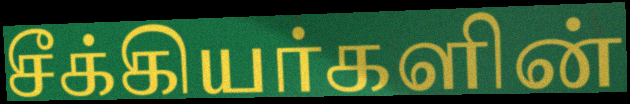
சீக்கியர்களின்